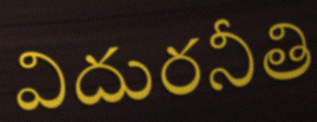
విదురనీతి